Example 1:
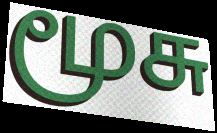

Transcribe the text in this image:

மூசு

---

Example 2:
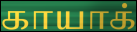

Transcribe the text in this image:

காயாக்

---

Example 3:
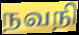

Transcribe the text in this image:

நவநி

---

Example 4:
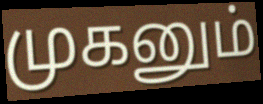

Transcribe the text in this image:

முகனும்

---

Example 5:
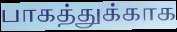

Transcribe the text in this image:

பாகத்துக்காக